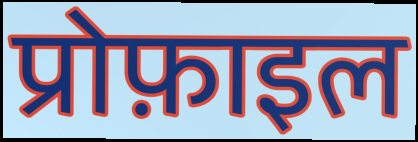
प्रोफ़ाइल